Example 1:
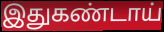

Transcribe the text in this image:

இதுகண்டாய்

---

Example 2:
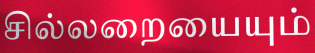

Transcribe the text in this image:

சில்லறையையும்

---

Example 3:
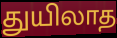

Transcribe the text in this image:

துயிலாத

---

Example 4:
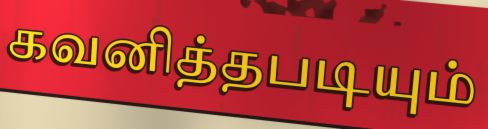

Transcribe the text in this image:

கவனித்தபடியும்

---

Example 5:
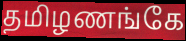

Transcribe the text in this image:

தமிழணங்கே